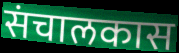
संचालकास